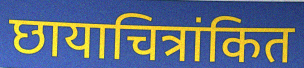
छायाचित्रांकित